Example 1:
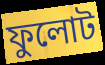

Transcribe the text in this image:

ফুলোট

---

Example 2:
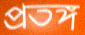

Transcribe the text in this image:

প্রতঙ্গ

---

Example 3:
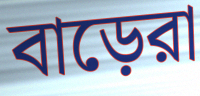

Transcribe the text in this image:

বাড়েরা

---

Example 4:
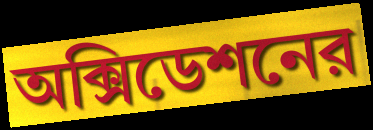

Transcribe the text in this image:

অক্সিডেশনের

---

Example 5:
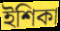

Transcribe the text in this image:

ইশিকা